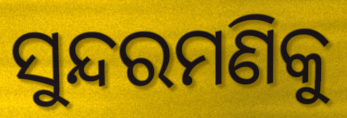
ସୁନ୍ଦରମଣିକୁ